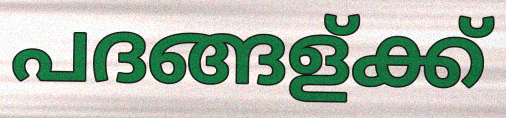
പദങ്ങള്ക്ക്